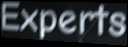
Experts